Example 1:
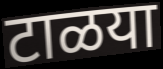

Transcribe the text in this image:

टाळया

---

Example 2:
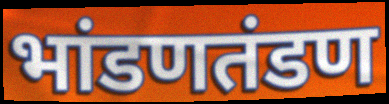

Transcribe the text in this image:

भांडणतंडण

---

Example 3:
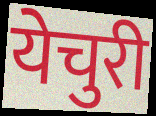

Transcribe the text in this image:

येचुरी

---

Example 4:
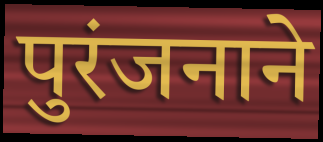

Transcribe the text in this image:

पुरंजनाने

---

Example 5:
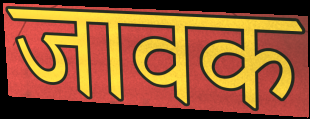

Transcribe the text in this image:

जावक